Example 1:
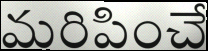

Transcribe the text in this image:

మరిపించే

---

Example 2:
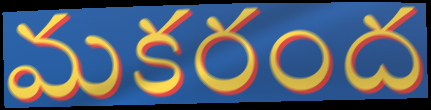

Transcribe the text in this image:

మకరంద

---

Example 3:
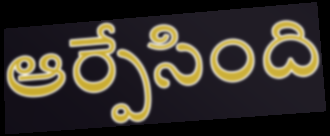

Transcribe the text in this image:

ఆర్పేసింది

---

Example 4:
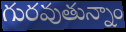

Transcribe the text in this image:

గురవుతున్నాం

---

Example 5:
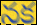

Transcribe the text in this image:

నక